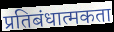
प्रतिबंधात्मकता